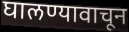
घालण्यावाचून